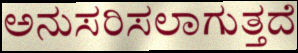
ಅನುಸರಿಸಲಾಗುತ್ತದೆ